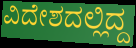
ವಿದೇಶದಲ್ಲಿದ್ದ